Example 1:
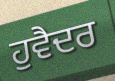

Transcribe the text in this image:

ਹੁਵੈਦਰ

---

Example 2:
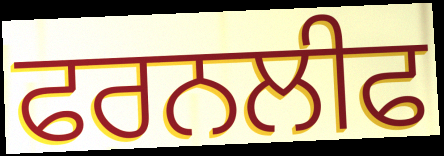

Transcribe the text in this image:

ਫਰਨਲੀਫ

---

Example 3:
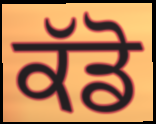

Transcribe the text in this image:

ਕੱਡੋ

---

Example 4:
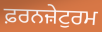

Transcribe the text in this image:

ਫ਼ਰਨਜ਼ੇਟੁਰਮ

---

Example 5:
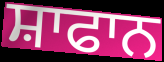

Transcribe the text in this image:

ਸ਼ਾਫਾਨ